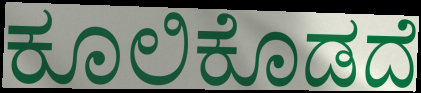
ಕೂಲಿಕೊಡದೆ